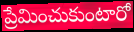
ప్రేమించుకుంటారో